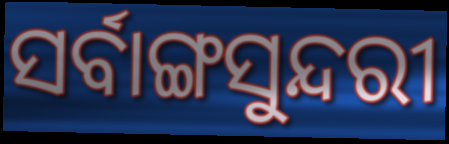
ସର୍ବାଙ୍ଗସୁନ୍ଦରୀ